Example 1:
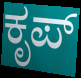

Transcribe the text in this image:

ಕೃಪ್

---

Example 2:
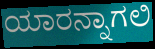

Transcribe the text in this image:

ಯಾರನ್ನಾಗಲಿ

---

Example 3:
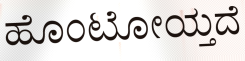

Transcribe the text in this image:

ಹೊಂಟೋಯ್ತದೆ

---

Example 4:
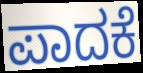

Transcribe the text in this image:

ಪಾದಕೆ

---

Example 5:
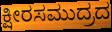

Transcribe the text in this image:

ಕ್ಷೀರಸಮುದ್ರದ